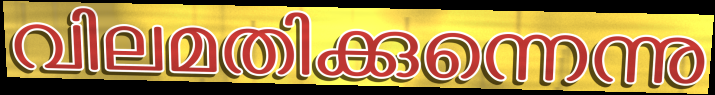
വിലമതിക്കുന്നെന്നു